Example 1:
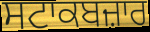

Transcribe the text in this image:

ਸਟਾਕਬਜ਼ਾਰ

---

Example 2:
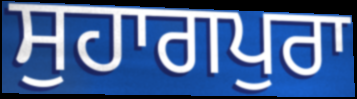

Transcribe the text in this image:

ਸੁਹਾਗਪੁਰਾ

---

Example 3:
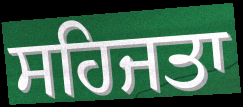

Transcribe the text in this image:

ਸਹਿਜਤਾ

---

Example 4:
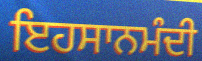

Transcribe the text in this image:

ਇਹਸਾਨਮੰਦੀ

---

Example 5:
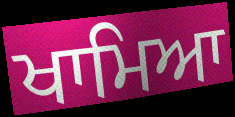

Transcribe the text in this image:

ਖਾਮਿਆ